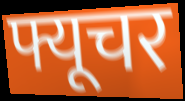
फ्यूचर